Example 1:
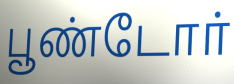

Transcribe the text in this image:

பூண்டோர்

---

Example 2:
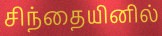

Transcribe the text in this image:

சிந்தையினில்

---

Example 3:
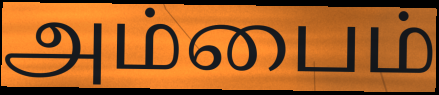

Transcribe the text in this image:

அம்பைம்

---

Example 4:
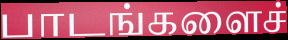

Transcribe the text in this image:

பாடங்களைச்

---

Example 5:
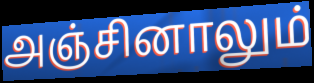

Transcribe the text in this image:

அஞ்சினாலும்